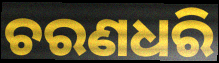
ଚରଣଧରି